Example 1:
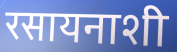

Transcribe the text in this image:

रसायनाशी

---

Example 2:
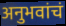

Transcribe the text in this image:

अनुभवांचं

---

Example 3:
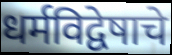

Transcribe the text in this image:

धर्मविद्वेषाचे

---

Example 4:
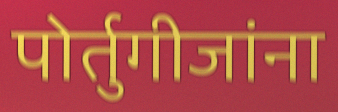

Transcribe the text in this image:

पोर्तुगीजांना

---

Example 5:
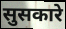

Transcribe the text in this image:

सुसकारे